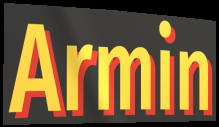
Armin